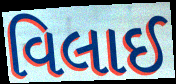
વિલાઈ